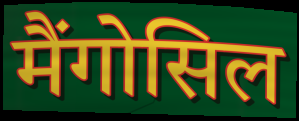
मैंगोसिल